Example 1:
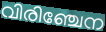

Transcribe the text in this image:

വിരിഞ്ചേന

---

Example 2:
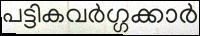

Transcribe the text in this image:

പട്ടികവർഗ്ഗക്കാർ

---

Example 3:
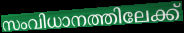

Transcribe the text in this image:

സംവിധാനത്തിലേക്ക്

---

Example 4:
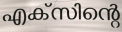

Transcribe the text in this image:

എക്‌സിന്റെ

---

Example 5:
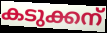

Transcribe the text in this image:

കടുക്കന്